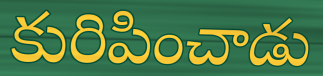
కురిపించాడు